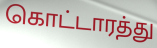
கொட்டாரத்து